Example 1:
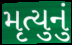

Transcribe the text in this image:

મૃત્યુનું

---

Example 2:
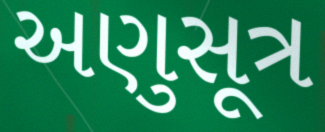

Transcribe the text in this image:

અણુસૂત્ર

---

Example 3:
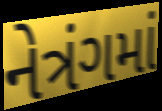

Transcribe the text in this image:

નેત્રંગમાં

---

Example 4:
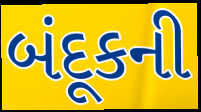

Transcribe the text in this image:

બંદૂકની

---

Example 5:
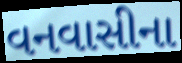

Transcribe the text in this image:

વનવાસીના